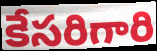
కేసరిగారి